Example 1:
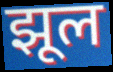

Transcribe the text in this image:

झूल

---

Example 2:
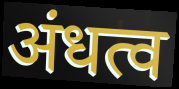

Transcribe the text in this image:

अंधत्व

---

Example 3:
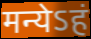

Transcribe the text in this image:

मन्येऽहं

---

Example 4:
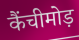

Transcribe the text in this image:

कैंचीमोड़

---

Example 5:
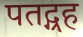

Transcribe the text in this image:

पतद्ग्रह